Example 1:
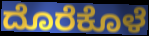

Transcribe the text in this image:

ದೊರೆಕೊಳೆ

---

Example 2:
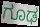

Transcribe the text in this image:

ಗೂಢ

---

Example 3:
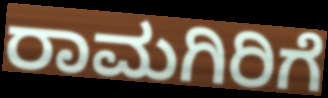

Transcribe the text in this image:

ರಾಮಗಿರಿಗೆ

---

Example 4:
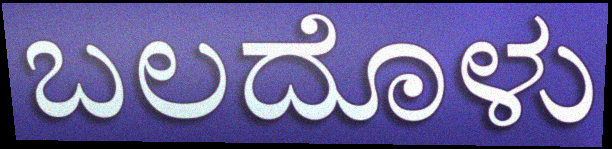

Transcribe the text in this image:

ಬಲದೊಳು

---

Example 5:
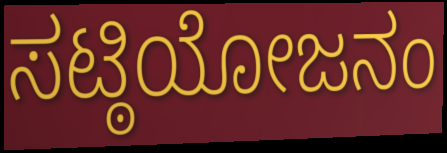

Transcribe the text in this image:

ಸಟ್ಠಿಯೋಜನಂ